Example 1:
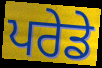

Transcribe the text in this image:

ਪਰੇਡੇ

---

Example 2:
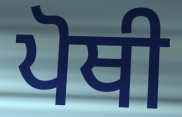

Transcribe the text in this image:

ਪੋਥੀ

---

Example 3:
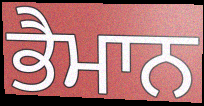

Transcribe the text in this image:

ਭੈਮਾਨ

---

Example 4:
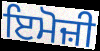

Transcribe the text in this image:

ਇਮੋਜ਼ੀ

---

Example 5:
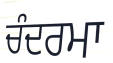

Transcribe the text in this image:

ਚੰਦਰਮਾ